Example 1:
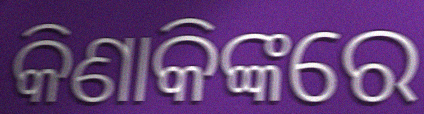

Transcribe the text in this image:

କିଣାକିଙ୍କରେ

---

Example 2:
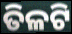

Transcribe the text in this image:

ତିଳଟି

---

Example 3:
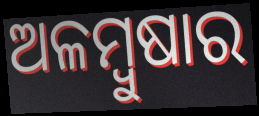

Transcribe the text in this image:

ଅଳମ୍ବୁଷାର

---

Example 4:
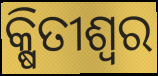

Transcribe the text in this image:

କ୍ଷିତୀଶ୍ୱର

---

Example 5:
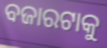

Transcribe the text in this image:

ବଜାରଟାକୁ